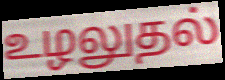
உழலுதல்